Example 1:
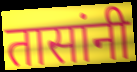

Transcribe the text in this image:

तासांनी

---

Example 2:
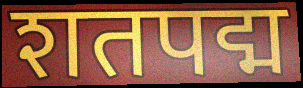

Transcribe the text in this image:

शतपद्म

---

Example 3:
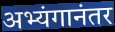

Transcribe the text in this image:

अभ्यंगानंतर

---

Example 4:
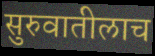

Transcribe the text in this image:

सुरुवातीलाच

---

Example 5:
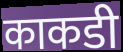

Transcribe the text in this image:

काकडी